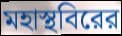
মহাস্থবিরের